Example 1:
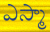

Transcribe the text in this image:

ఎస్మా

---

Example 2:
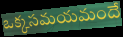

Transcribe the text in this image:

ఒక్కసమయమందే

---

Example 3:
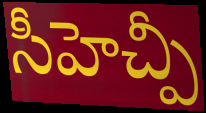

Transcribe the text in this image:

సీహెచ్పీ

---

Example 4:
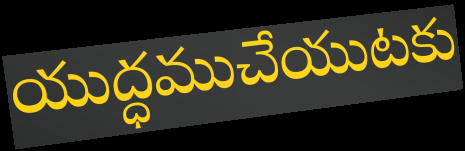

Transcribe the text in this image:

యుద్ధముచేయుటకు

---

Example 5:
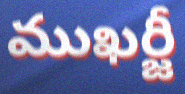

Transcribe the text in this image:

ముఖర్జీ